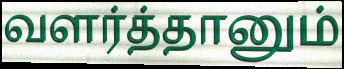
வளர்த்தானும்